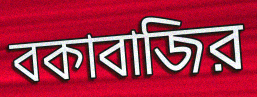
বকাবাজির